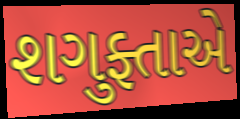
શગુફ્તાએ